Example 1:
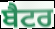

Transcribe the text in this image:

ਬੈਟਰ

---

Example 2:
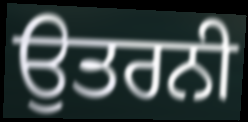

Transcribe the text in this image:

ਉਤਰਨੀ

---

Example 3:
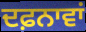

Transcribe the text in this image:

ਦਫ਼ਨਾਵਾਂ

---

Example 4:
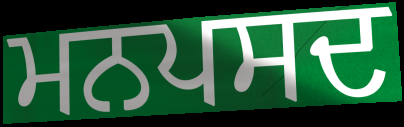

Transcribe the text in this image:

ਮਨਪਸਦ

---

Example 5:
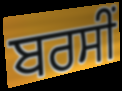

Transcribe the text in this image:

ਬਰਸੀਂ